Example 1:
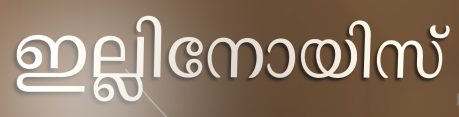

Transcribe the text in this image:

ഇല്ലിനോയിസ്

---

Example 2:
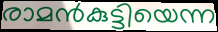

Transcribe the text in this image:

രാമൻകുട്ടിയെന്ന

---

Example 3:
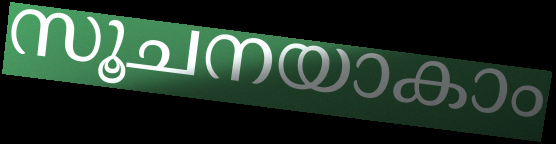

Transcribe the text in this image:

സൂചനയാകാം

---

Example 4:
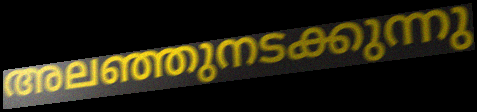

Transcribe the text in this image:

അലഞ്ഞുനടക്കുന്നു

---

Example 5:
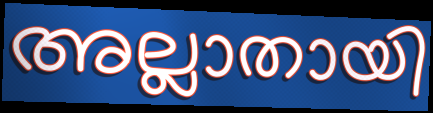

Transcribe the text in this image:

അല്ലാതായി